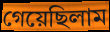
গেয়েছিলাম